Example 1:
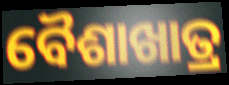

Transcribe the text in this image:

ବୈଶାଖାତ୍ର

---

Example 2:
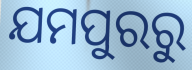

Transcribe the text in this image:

ଯମପୁରରୁ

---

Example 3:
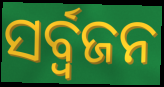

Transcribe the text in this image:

ସର୍ବ୍ବଜନ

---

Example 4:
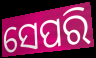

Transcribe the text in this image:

ସେପରି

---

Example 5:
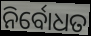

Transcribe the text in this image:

ନିର୍ବୋଧତ